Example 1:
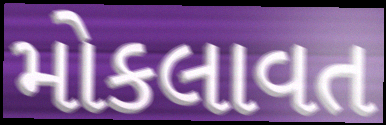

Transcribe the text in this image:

મોકલાવત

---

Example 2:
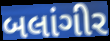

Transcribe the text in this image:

બલાંગીર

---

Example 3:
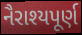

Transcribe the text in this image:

નૈરાશ્યપૂર્ણ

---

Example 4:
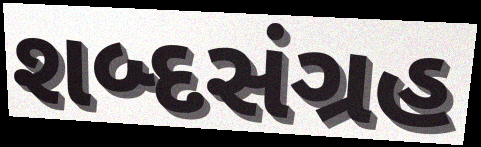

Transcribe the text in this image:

શબ્દસંગ્રહ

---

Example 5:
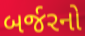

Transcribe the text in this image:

બર્જરનો